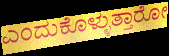
ಎಂದುಕೊಳ್ಳುತ್ತಾರೋ